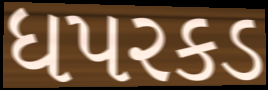
ધપરકડ